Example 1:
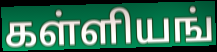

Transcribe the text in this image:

கள்ளியங்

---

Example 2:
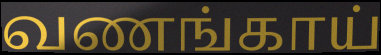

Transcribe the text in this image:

வணங்காய்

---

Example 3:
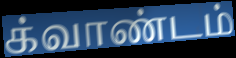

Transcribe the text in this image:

க்வாண்டம்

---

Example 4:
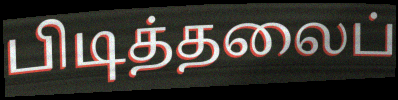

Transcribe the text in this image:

பிடித்தலைப்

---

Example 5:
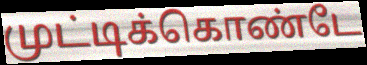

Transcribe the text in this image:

முட்டிக்கொண்டே